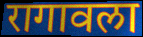
रागावला